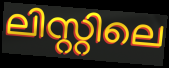
ലിസ്റ്റിലെ